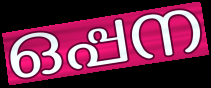
ഒപ്പന